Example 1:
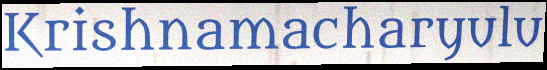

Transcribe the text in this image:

Krishnamacharyulu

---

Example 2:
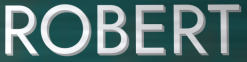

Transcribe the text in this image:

ROBERT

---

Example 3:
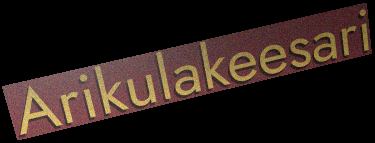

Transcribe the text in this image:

Arikulakeesari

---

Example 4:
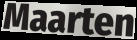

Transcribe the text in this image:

Maarten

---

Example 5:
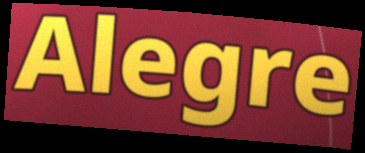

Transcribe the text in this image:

Alegre